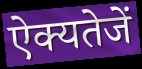
ऐक्यतेजें